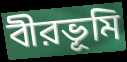
বীরভূমি